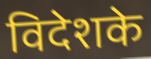
विदेशके